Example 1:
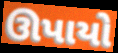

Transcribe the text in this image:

ઊપાયો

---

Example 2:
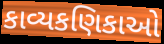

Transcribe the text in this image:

કાવ્યકણિકાઓ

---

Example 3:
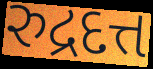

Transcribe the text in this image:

રુદ્રદત્ત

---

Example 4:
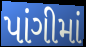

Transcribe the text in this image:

પાંગીમાં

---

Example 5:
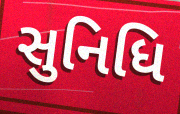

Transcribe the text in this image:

સુનિધિ